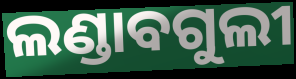
ଲଣ୍ଡାବଗୁଲୀ